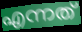
എന്നത്